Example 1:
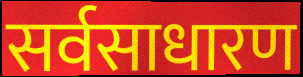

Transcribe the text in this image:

सर्वसाधारण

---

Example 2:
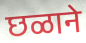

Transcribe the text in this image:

छळाने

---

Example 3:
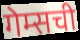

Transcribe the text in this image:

गेम्सची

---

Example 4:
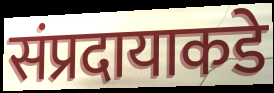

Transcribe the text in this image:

संप्रदायाकडे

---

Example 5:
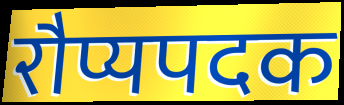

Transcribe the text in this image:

रौप्यपदक